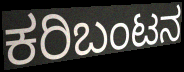
ಕರಿಬಂಟನ